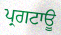
ਪ੍ਰਗਟਾਊ